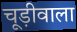
चूड़ीवाला